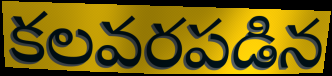
కలవరపడిన